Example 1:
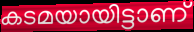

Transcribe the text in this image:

കടമയായിട്ടാണ്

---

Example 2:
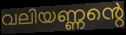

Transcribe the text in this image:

വലിയണ്ണന്റെ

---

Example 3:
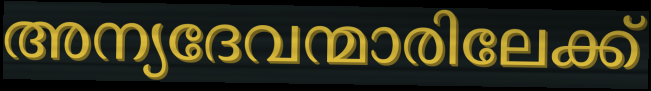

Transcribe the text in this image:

അന്യദേവന്മാരിലേക്ക്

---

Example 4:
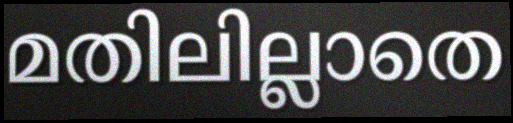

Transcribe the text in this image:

മതിലില്ലാതെ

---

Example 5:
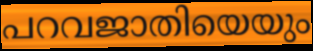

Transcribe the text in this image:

പറവജാതിയെയും